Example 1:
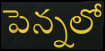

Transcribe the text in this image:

పెన్నలో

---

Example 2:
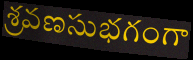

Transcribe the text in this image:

శ్రవణసుభగంగా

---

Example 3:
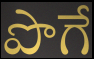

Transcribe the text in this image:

పొగే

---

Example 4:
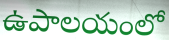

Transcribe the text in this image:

ఉపాలయంలో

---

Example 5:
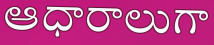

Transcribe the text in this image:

ఆధారాలుగా